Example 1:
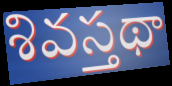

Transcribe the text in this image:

శివస్తథా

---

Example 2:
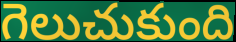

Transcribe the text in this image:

గెలుచుకుంది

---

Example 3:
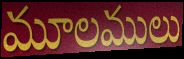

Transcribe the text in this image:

మూలములు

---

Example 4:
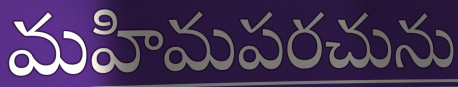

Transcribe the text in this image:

మహిమపరచును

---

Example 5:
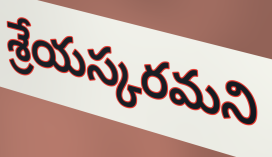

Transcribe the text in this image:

శ్రేయస్కరమని